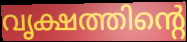
വൃക്ഷത്തിന്റെ